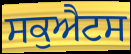
ਸਕੁਐਟਸ